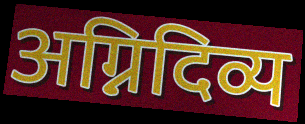
अग्निदिव्य